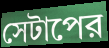
সেটাপের